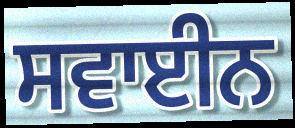
ਸਵਾਈਨ